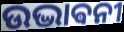
ଉଦ୍ଭାଵନୀ